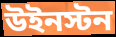
উইনস্টন